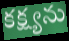
కక్ష్యను